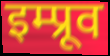
इम्प्रूव